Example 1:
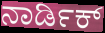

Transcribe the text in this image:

ನಾರ್ಡಿಕ್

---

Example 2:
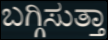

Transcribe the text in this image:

ಬಗ್ಗಿಸುತ್ತಾ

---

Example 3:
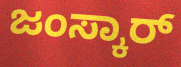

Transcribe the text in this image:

ಜಂಸ್ಕಾರ್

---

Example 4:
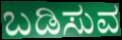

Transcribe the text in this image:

ಬಡಿಸುವ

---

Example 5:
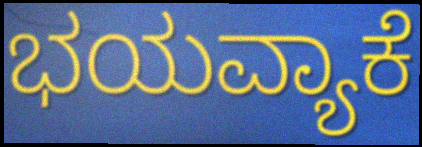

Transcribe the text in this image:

ಭಯವ್ಯಾಕೆ